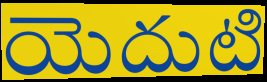
యెదుటి